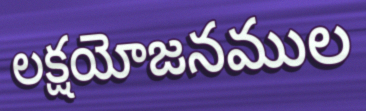
లక్షయోజనముల